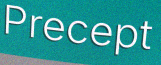
Precept